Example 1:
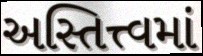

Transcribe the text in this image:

અસ્તિત્ત્વમાં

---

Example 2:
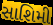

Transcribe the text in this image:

સાશિમી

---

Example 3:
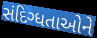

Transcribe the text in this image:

સંદિગ્ધતાઓને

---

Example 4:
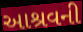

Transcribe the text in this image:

આશ્રવની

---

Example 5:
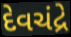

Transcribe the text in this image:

દેવચંદ્રે